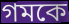
গমকে